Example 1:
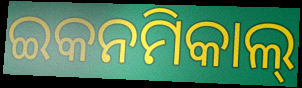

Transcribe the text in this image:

ଇକନମିକାଲ୍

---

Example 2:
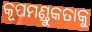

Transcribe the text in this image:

କୂପମଣ୍ଡୁକତାକୁ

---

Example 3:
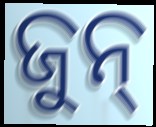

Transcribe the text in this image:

ଜୁନ୍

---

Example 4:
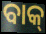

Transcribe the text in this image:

ବାକ୍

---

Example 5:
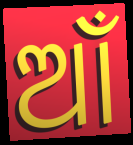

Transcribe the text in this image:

ଆଁ